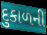
દુકાળની